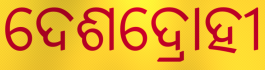
ଦେଶଦ୍ରୋହୀ